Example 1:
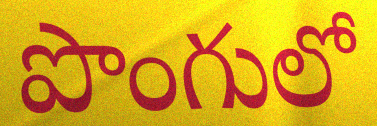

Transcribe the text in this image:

పొంగులో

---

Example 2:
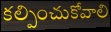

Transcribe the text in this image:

కల్పించుకోవాలి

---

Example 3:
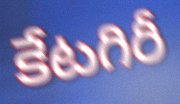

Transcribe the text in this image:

కేటగిరీ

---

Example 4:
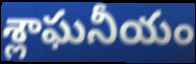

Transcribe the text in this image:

శ్లాఘనీయం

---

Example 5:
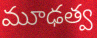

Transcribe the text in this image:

మూఢత్వ